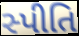
સ્પીતિ